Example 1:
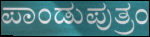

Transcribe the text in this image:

ಪಾಂಡುಪುತ್ರಂ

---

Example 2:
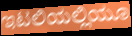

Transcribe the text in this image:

ಇಟಲಿಯಲ್ಲಿಯೂ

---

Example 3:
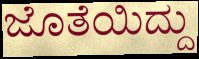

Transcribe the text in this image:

ಜೊತೆಯಿದ್ದು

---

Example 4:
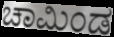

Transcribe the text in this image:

ಚಾಮಿಂಡ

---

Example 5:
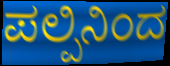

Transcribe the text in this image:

ಪಲ್ಪಿನಿಂದ